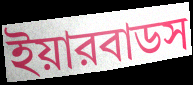
ইয়ারবাডস